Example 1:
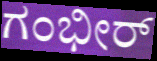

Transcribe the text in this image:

ಗಂಭೀರ್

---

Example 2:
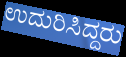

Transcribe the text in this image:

ಉದುರಿಸಿದ್ದರು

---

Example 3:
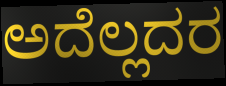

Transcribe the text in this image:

ಅದೆಲ್ಲದರ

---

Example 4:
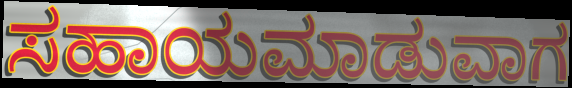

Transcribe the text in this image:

ಸಹಾಯಮಾಡುವಾಗ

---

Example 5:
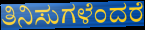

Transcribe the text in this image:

ತಿನಿಸುಗಳೆಂದರೆ